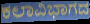
ಕಲಾವಿಭಾಗದ